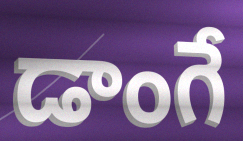
డాంగే